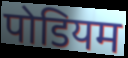
पोडियम